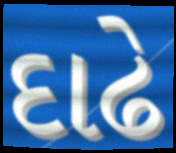
દાઢે